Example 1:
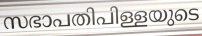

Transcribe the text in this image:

സഭാപതിപിള്ളയുടെ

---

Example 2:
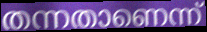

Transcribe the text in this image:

തന്നതാണെന്ന്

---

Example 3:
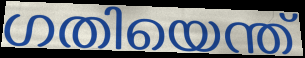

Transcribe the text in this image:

ഗതിയെന്ത്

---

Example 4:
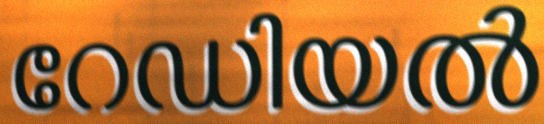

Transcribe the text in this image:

റേഡിയൽ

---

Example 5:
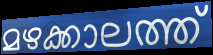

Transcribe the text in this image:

മഴക്കാലത്ത്